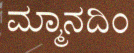
ಮ್ಮಾನದಿಂ